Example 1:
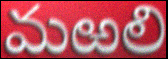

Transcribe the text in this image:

మఱలి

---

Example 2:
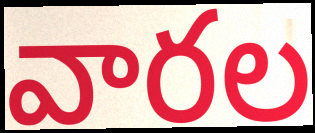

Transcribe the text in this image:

వారల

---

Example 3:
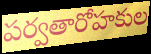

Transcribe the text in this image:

పర్వతారోహకుల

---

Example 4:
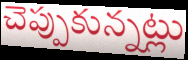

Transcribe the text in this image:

చెప్పుకున్నట్లు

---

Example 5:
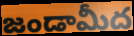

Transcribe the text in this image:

జండామీద